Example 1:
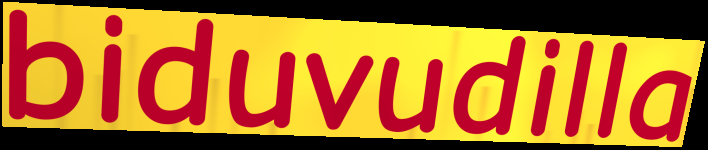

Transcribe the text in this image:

biduvudilla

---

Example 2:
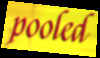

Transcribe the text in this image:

pooled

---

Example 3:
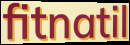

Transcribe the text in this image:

fitnatil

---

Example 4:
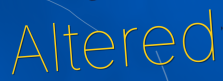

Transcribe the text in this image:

Altered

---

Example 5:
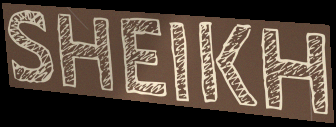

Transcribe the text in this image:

SHEIKH